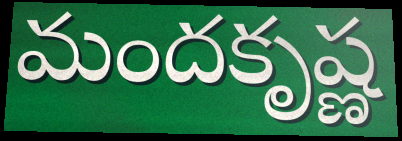
మందకృష్ణ